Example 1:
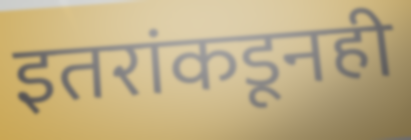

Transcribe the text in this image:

इतरांकडूनही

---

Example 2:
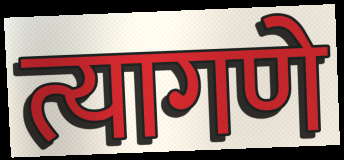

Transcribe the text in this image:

त्यागणे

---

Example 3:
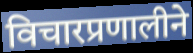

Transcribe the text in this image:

विचारप्रणालीने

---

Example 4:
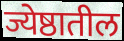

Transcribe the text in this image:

ज्येष्ठातील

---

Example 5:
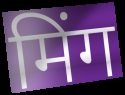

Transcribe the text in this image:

मिंग